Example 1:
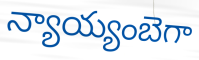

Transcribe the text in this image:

న్యాయ్యంబెగా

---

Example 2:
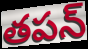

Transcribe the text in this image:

తపన్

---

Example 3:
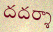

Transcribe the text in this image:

దదర్శా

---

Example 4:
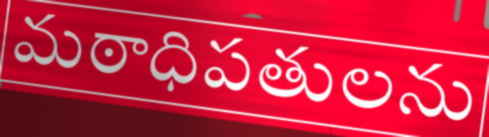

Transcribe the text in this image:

మఠాధిపతులను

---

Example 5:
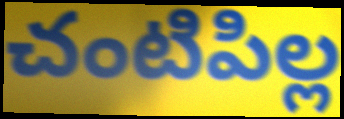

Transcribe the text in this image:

చంటిపిల్ల